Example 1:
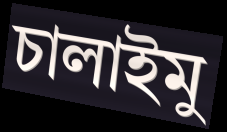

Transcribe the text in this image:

চালাইমু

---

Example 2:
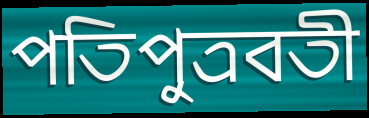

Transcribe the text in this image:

পতিপুত্রবতী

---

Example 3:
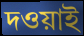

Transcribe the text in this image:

দওয়াই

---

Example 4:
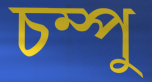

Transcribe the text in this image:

চম্পু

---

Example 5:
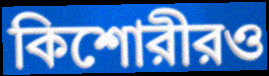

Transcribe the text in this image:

কিশোরীরও